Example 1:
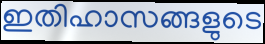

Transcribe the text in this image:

ഇതിഹാസങ്ങളുടെ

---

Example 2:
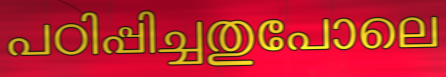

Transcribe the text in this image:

പഠിപ്പിച്ചതുപോലെ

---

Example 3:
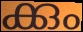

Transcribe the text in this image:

ക്കും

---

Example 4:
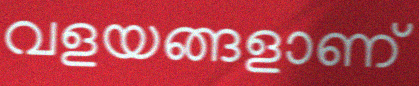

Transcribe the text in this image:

വളയങ്ങളാണ്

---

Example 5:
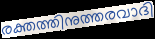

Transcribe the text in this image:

രക്തത്തിനുത്തരവാദി